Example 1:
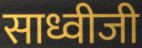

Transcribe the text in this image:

साध्वीजी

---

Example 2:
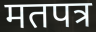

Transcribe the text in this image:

मतपत्र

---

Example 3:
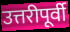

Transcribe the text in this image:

उत्तरीपूर्वी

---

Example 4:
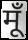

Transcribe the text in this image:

मूँ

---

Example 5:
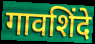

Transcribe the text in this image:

गावशिंदे